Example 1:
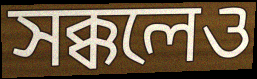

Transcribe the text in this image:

সক্কলেও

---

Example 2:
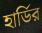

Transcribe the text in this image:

হার্ডির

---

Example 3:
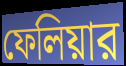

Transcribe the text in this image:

ফেলিয়ার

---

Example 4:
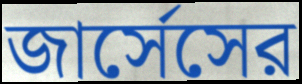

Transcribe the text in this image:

জার্সেসের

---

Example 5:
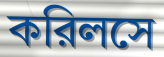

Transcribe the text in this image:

করিলসে